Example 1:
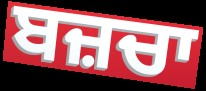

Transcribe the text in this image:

ਬਜ਼ਚਾ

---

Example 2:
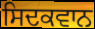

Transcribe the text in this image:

ਸਿਦਕਵਾਨ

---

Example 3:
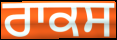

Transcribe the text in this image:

ਰਾਕਸ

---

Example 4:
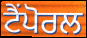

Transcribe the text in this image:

ਟੈਂਪੋਰਲ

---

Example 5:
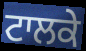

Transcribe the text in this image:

ਟਾਲਕੇ